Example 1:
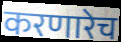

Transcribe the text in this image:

करणारेच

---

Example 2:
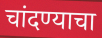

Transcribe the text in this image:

चांदण्याचा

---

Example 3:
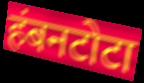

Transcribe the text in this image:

हंबनटोटा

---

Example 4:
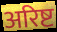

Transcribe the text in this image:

अरिष्ट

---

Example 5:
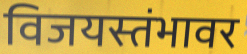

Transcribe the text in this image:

विजयस्तंभावर